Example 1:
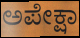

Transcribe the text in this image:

ಅಪೇಕ್ಷಾ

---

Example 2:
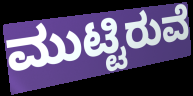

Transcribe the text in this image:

ಮುಟ್ಟಿರುವೆ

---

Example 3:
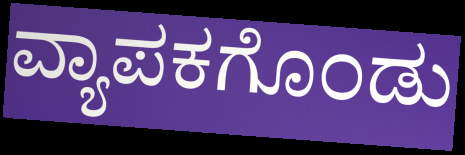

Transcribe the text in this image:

ವ್ಯಾಪಕಗೊಂಡು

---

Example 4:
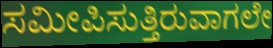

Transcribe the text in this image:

ಸಮೀಪಿಸುತ್ತಿರುವಾಗಲೇ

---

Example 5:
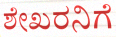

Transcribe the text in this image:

ಶೇಖರನಿಗೆ